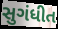
સુગંધીત